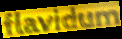
flavidum